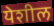
येशील